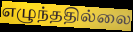
எழுந்ததில்லை